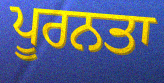
ਪੂਰਨਤਾ